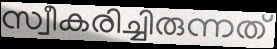
സ്വീകരിച്ചിരുന്നത്